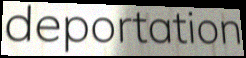
deportation